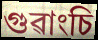
গুৱাংচি